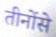
तीनोंसे